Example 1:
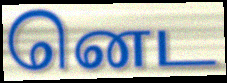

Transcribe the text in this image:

னெட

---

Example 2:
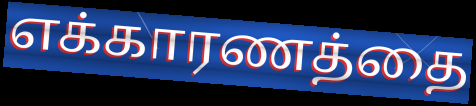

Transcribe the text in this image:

எக்காரணத்தை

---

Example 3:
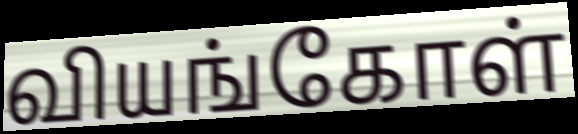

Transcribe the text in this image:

வியங்கோள்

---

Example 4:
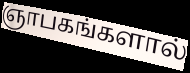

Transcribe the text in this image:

ஞாபகங்களால்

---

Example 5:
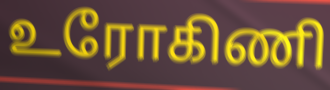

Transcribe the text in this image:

உரோகிணி